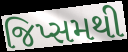
જિપ્સમથી